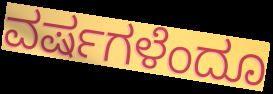
ವರ್ಷಗಳೆಂದೂ